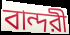
বান্দরী